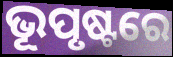
ଭୂପୃଷ୍ଟରେ